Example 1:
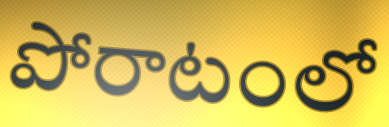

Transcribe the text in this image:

పోరాటంలో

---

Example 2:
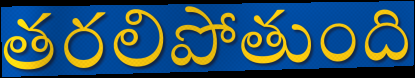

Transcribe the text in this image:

తరలిపోతుంది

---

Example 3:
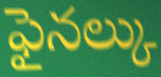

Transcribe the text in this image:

ఫైనల్కు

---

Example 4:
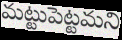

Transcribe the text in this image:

మట్టుపెట్టమని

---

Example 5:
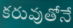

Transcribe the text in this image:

కరువుతోనే